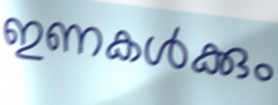
ഇണകൾക്കും